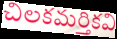
చిలకమర్తికవి